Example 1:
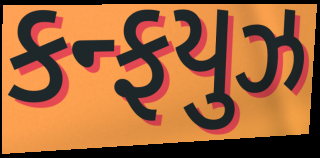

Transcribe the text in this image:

કન્ફયુઝ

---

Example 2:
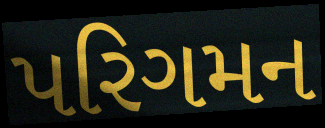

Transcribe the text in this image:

પરિગમન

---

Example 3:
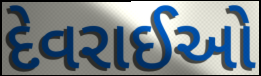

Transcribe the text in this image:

દેવરાઈઓ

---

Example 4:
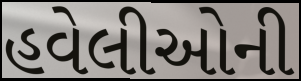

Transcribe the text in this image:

હવેલીઓની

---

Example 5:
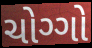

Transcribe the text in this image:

ચોગ્ગો